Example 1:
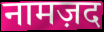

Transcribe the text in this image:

नामज़द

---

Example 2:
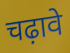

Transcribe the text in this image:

चढ़ावे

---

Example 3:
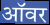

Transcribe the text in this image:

ऑवर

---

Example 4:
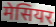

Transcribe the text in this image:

मेसियर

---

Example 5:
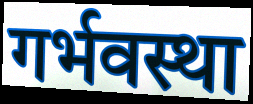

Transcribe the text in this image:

गर्भवस्था